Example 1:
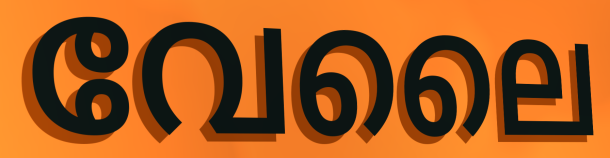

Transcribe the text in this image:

വേലൈ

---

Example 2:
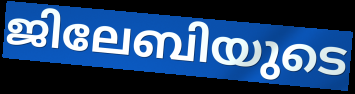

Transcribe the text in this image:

ജിലേബിയുടെ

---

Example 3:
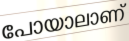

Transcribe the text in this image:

പോയാലാണ്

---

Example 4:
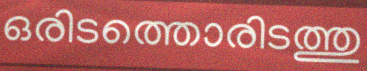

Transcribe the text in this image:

ഒരിടത്തൊരിടത്തു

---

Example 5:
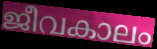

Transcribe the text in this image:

ജീവകാലം